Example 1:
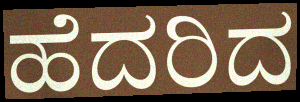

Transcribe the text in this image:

ಹೆದರಿದ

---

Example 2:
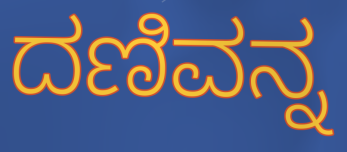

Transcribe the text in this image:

ದಣಿವನ್ನ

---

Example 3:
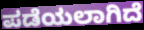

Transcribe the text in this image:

ಪಡೆಯಲಾಗಿದೆ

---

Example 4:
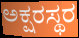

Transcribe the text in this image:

ಅಕ್ಷರಸ್ಥರ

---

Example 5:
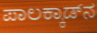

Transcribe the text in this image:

ಪಾಲಕ್ಕಾಡ್‌ನ